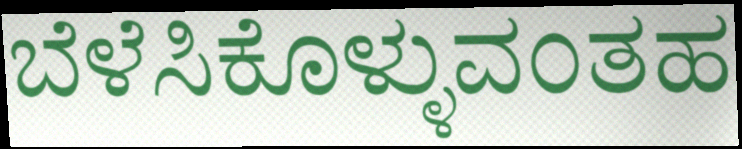
ಬೆಳೆಸಿಕೊಳ್ಳುವಂತಹ